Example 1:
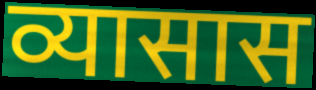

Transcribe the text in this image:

व्यासास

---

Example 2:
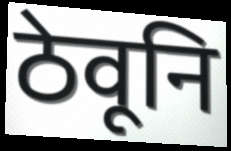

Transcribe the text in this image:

ठेवूनि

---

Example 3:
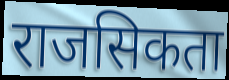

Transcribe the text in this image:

राजसिकता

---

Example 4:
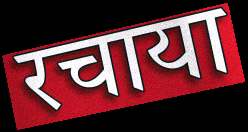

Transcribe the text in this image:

रचाया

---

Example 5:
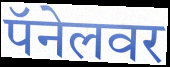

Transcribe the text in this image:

पॅनेलवर